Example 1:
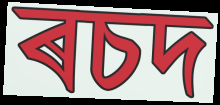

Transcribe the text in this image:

ৰচদ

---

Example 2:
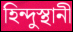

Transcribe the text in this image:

হিন্দুস্থানী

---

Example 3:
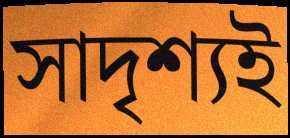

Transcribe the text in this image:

সাদৃশ্যই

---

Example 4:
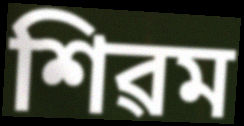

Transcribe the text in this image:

শিৱম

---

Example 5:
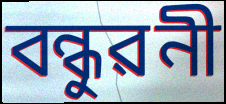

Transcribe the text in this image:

বন্ধুৱনী